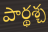
పార్థశ్చ